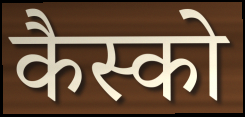
कैस्को